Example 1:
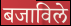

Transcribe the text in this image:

बजाविले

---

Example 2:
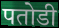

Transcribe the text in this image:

पतोडी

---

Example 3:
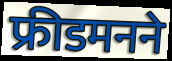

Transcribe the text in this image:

फ्रीडमनने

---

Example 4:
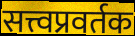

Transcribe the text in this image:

सत्त्वप्रवर्तक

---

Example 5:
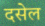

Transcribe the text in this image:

दसेल